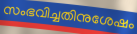
സംഭവിച്ചതിനുശേഷം